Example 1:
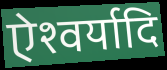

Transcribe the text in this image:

ऐश्वर्यादि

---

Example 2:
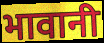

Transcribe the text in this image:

भावानी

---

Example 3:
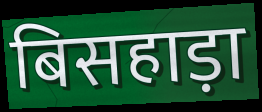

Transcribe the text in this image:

बिसहाड़ा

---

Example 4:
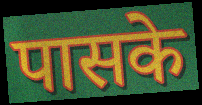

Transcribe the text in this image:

पासके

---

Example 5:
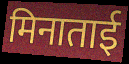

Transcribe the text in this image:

मिनाताई